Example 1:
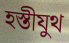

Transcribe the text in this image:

হস্তীযুথ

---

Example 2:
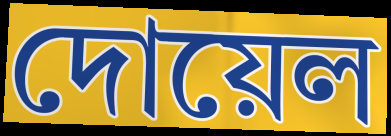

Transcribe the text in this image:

দোয়েল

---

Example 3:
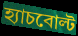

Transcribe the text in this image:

হ্যাচবোল্ট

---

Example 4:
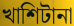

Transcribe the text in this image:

খাশিটানা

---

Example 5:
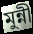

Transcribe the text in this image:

মুন্নী